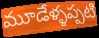
మూడేళ్ళప్పటి